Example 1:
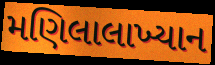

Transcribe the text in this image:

મણિલાલાખ્યાન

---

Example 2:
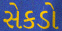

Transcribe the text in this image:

સેકડો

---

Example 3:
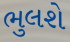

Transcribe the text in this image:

ભુલશે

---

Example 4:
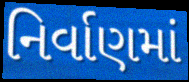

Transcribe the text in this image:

નિર્વાણમાં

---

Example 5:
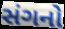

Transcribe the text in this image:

સંગનો